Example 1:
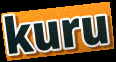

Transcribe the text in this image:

kuru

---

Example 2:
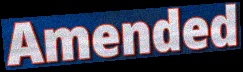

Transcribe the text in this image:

Amended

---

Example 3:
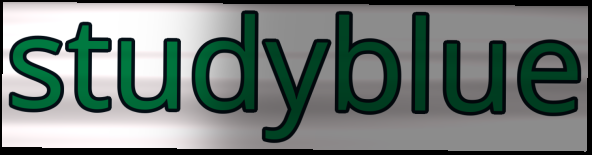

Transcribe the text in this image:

studyblue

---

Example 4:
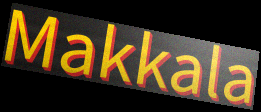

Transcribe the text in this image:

Makkala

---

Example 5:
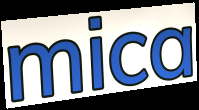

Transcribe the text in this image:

mica